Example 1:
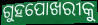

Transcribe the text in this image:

ଗୁହପୋଖରୀକୁ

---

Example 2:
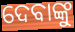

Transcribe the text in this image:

ଦେବାଙ୍କୁ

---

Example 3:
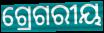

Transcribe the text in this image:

ଗ୍ରେଗରୀୟ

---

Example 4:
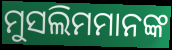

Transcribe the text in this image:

ମୁସଲିମମାନଙ୍କ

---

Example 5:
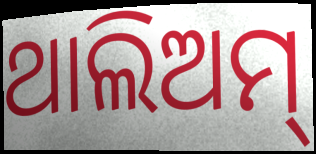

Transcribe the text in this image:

ଥାଲିଅମ୍